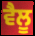
ਵੈਲੂ